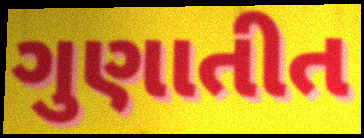
ગુણાતીત